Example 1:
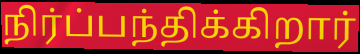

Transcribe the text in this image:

நிர்ப்பந்திக்கிறார்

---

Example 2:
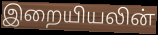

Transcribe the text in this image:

இறையியலின்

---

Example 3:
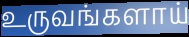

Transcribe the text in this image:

உருவங்களாய்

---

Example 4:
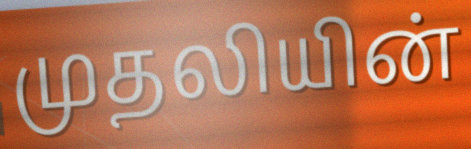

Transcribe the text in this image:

முதலியின்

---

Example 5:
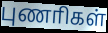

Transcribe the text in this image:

புணரிகள்